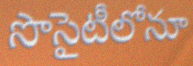
సొసైటీలోనూ